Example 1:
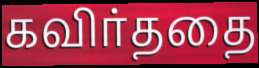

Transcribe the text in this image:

கவிர்ததை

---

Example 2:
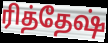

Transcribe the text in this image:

ரித்தேஷ்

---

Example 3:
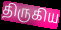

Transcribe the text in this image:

திருகிய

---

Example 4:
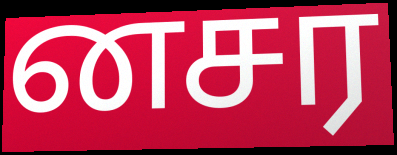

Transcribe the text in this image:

னசர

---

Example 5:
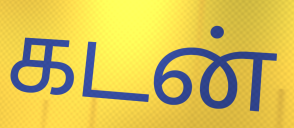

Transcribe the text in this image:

கடன்